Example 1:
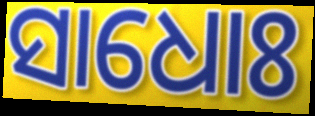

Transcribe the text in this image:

ସାଧୋଃ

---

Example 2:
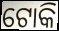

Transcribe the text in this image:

ଟୋକି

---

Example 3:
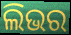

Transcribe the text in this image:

ଲିଭର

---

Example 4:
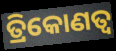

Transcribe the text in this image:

ତ୍ରିକୋଣତ୍ଵ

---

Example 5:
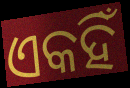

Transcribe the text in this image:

ଏକହିଁ